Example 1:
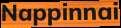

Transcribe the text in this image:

Nappinnai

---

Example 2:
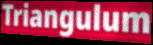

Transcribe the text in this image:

Triangulum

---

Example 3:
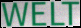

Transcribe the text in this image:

WELT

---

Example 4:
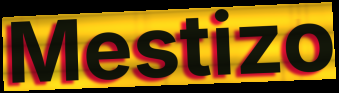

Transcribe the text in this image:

Mestizo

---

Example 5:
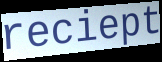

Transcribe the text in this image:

reciept